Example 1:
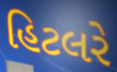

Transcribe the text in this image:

હિટલરે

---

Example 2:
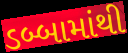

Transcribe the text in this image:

ડબ્બામાંથી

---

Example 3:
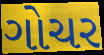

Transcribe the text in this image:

ગોચર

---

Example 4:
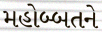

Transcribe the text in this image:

મહોબ્બતને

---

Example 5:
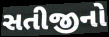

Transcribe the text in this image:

સતીજીનો